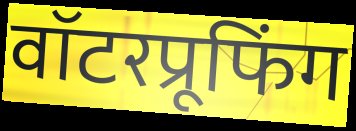
वॉटरप्रूफिंग